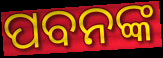
ପବନଙ୍କ